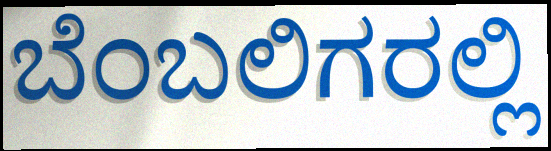
ಬೆಂಬಲಿಗರಲ್ಲಿ